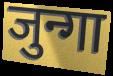
जुन्गा